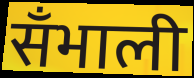
सँभाली